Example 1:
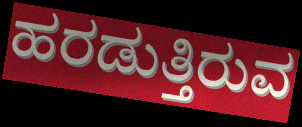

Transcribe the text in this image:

ಹರಡುತ್ತಿರುವ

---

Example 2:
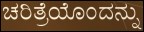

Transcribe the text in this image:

ಚರಿತ್ರೆಯೊಂದನ್ನು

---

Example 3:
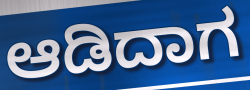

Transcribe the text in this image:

ಆಡಿದಾಗ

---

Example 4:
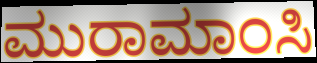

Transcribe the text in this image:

ಮುರಾಮಾಂಸಿ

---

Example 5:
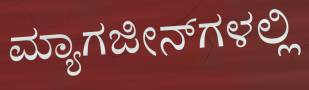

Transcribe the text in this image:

ಮ್ಯಾಗಜೀನ್‌ಗಳಲ್ಲಿ